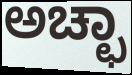
ಅಚ್ಛಾ